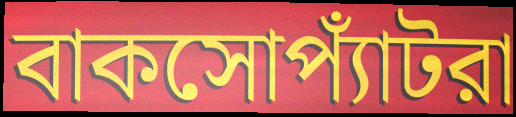
বাকসোপ্যাঁটরা